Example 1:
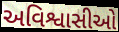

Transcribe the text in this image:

અવિશ્વાસીઓ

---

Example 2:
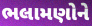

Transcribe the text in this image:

ભલામણોને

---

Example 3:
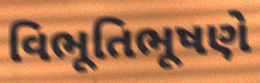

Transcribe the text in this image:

વિભૂતિભૂષણે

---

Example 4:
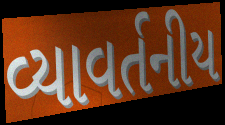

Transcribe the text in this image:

વ્યાવર્તનીય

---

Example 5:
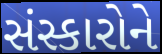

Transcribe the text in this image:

સંસ્કારોને